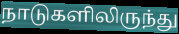
நாடுகளிலிருந்து